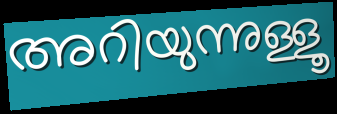
അറിയുന്നുള്ളൂ